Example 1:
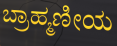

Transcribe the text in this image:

ಬ್ರಾಹ್ಮಣೀಯ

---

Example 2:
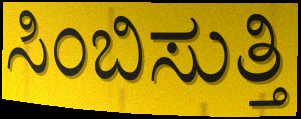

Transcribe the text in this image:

ಸಿಂಬಿಸುತ್ತಿ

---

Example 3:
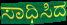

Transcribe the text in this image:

ಸಾಧಿಸಿದ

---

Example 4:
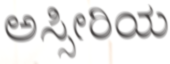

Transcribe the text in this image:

ಅಸ್ಸೀರಿಯ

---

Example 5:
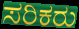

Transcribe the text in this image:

ಸರಿಕರು